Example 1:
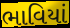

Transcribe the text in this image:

ભાવિયાં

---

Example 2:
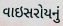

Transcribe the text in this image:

વાઇસરોયનું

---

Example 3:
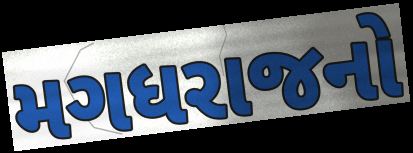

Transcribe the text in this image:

મગધરાજનો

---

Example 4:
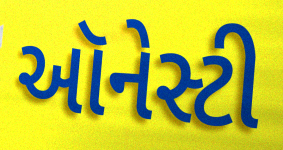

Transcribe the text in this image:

ઑનેસ્ટી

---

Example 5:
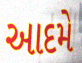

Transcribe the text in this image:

આદમે